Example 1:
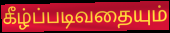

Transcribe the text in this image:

கீழ்ப்படிவதையும்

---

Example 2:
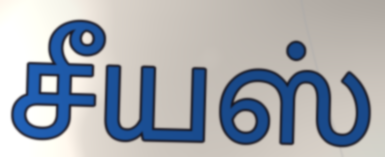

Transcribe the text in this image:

சீயஸ்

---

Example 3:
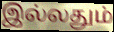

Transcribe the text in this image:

இல்லதும்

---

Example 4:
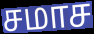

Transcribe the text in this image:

சமாச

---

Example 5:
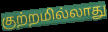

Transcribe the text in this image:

குற்றமில்லாது